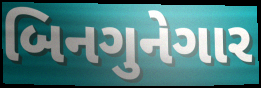
બિનગુનેગાર